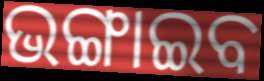
ଭଙ୍ଗାଇବ